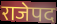
राजेपद